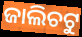
ଜାଲିଚଟୁ